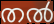
തൽ